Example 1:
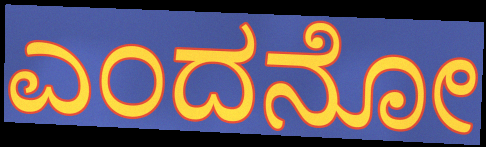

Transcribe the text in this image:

ಎಂದನೋ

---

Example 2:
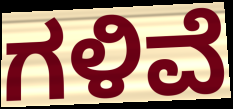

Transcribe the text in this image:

ಗಳಿವೆ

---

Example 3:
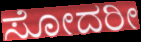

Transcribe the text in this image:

ಸೋದರೀ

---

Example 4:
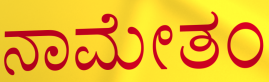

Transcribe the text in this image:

ನಾಮೇತಂ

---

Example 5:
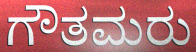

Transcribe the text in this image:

ಗೌತಮರು